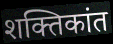
शक्तिकांत